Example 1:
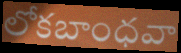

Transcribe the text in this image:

లోకబాంధవా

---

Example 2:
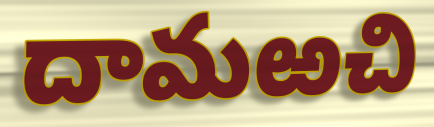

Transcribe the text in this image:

దామఱచి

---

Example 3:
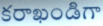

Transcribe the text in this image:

కరాఖండిగా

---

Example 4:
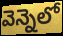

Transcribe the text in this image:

వెన్నెలో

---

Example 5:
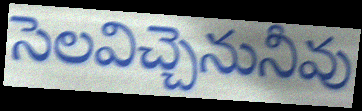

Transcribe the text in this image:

సెలవిచ్చెనునీవు